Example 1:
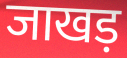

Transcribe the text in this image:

जाखड़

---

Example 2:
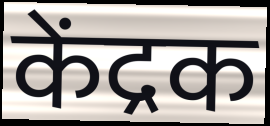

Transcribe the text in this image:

केंद्रक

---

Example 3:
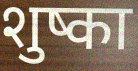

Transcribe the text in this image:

शुष्का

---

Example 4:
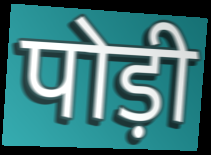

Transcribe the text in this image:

पोड़ी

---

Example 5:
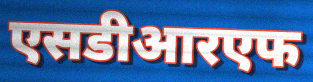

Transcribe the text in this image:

एसडीआरएफ